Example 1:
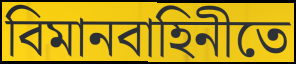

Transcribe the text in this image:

বিমানবাহিনীতে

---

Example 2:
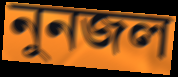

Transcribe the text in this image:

নুনজল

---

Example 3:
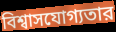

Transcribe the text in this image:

বিশ্বাসযোগ্যতার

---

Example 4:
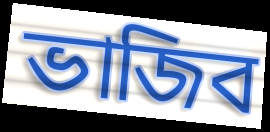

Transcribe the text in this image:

ভাজিব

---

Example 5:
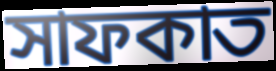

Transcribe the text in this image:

সাফকাত